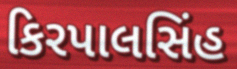
કિરપાલસિંહ